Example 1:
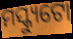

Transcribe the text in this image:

ମସ୍କ୍ୟୁଟୋ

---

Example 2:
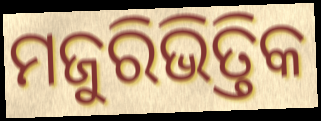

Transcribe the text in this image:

ମଜୁରିଭିତ୍ତିକ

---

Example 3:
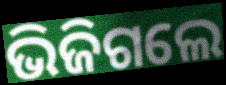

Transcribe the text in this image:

ଭିଜିଗଲେ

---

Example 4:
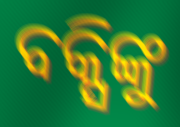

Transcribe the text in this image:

ବକ୍ସିଙ୍କୁ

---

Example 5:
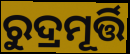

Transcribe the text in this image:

ରୁଦ୍ରମୂର୍ତ୍ତି